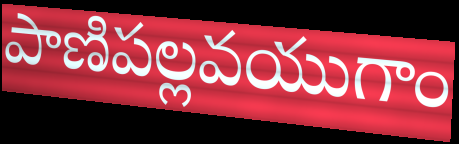
పాణిపల్లవయుగాం